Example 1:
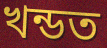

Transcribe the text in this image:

খন্ডত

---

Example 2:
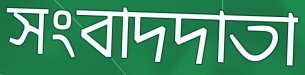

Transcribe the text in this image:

সংবাদদাতা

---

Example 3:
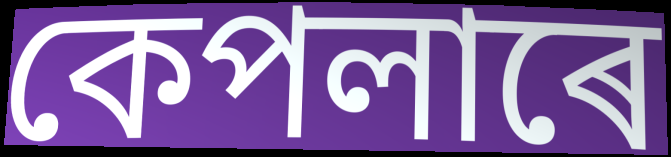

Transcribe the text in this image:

কেপলাৰে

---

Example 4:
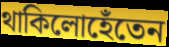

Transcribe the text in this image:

থাকিলোহেঁতেন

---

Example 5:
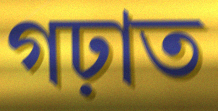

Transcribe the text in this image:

গঢ়াত